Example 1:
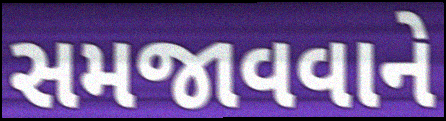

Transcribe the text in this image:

સમજાવવાને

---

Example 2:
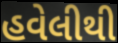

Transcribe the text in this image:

હવેલીથી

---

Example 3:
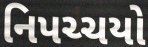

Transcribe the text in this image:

નિપચ્ચયો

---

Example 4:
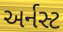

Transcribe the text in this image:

અર્નસ્ટ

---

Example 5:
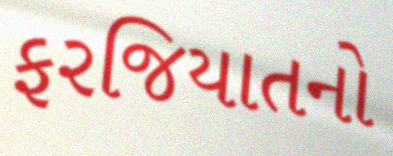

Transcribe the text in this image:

ફરજિયાતનો